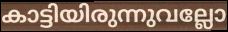
കാട്ടിയിരുന്നുവല്ലോ